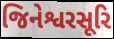
જિનેશ્વરસૂરિ